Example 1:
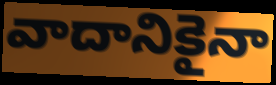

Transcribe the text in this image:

వాదానికైనా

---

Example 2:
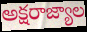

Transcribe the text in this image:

అక్షరాజ్యాల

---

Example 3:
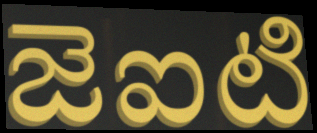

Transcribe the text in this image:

జెఐటి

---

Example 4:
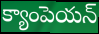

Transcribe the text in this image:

క్యాంపెయన్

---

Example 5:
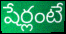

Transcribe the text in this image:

షేర్లంటే